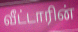
வீட்டாரின்